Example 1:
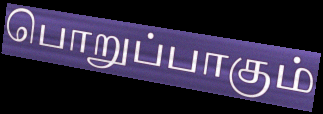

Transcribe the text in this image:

பொறுப்பாகும்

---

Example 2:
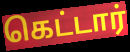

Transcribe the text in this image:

கெட்டார்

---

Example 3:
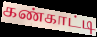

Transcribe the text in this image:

கண்காட்டி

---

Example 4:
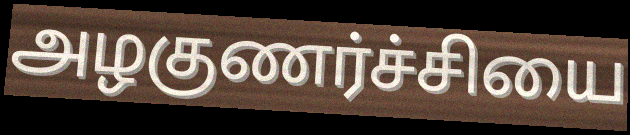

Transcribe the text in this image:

அழகுணர்ச்சியை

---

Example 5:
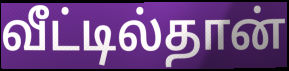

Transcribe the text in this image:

வீட்டில்தான்